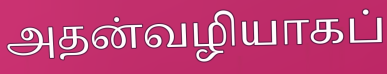
அதன்வழியாகப்